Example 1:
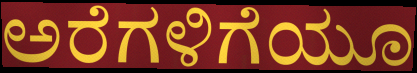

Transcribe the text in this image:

ಅರೆಗಳಿಗೆಯೂ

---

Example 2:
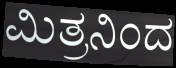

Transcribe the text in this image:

ಮಿತ್ರನಿಂದ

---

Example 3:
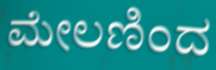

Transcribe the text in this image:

ಮೇಲಣಿಂದ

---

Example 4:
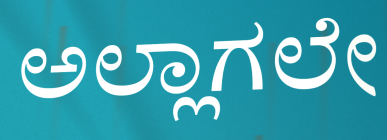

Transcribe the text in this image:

ಅಲ್ಲಾಗಲೇ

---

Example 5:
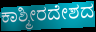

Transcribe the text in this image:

ಕಾಶ್ಮೀರದೇಶದ